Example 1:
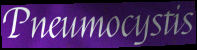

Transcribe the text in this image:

Pneumocystis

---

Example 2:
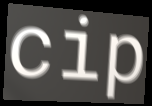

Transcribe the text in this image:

cip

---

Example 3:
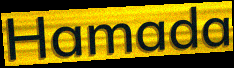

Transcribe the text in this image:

Hamada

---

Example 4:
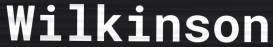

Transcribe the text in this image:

Wilkinson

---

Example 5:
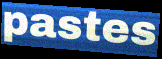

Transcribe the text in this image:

pastes